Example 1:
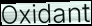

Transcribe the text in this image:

Oxidant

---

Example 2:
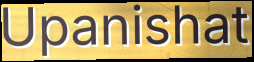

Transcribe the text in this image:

Upanishat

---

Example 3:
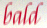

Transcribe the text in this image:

bald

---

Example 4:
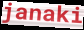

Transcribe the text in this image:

janaki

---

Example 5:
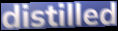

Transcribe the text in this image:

distilled